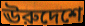
ঊরুদেশে